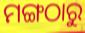
ମଙ୍ଗଠାରୁ